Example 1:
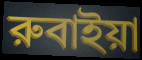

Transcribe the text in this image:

রুবাইয়া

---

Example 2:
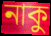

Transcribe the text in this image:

নাকু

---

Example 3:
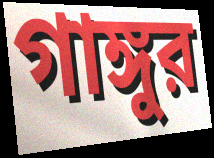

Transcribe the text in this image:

গাঙ্গুর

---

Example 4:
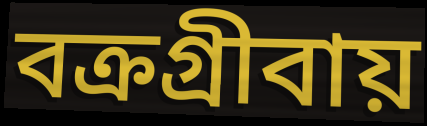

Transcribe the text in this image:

বক্রগ্রীবায়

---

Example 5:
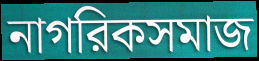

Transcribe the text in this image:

নাগরিকসমাজ